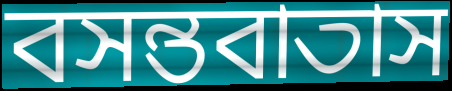
বসন্তবাতাস